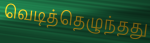
வெடித்தெழுந்தது